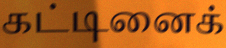
கட்டினைக்